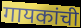
गायकांची